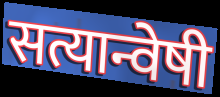
सत्यान्वेषी